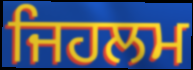
ਜਿਹਲਮ